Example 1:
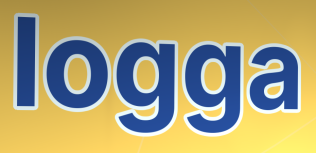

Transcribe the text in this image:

logga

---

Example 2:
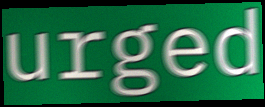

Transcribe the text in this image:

urged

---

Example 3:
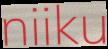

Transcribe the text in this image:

niiku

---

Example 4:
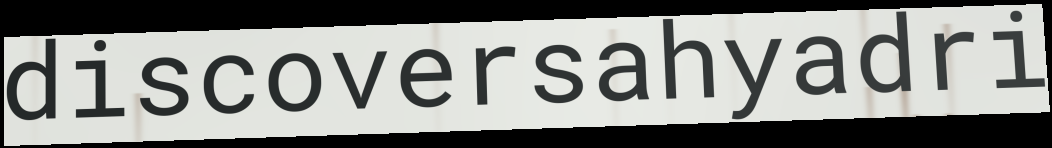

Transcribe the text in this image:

discoversahyadri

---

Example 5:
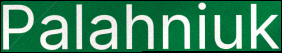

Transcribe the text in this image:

Palahniuk